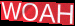
WOAH